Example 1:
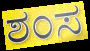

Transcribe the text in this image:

ಶಂಸ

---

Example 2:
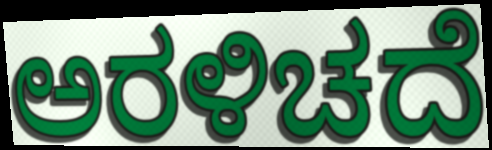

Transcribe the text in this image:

ಅರಳಿಚದೆ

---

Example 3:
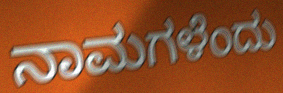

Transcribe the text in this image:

ನಾಮಗಳೆಂದು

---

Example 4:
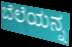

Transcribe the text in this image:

ಬೆಲೆಯನ್ನ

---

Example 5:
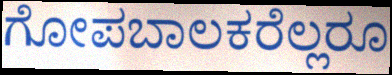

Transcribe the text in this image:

ಗೋಪಬಾಲಕರೆಲ್ಲರೂ